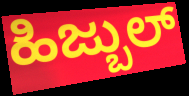
ಹಿಜ್ಬುಲ್